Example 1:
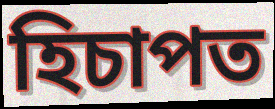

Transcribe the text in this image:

হিচাপত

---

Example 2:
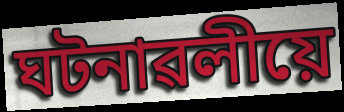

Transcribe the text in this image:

ঘটনাৱলীয়ে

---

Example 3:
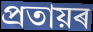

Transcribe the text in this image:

প্ৰতায়ৰ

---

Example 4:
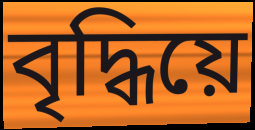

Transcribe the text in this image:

বৃদ্ধিয়ে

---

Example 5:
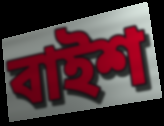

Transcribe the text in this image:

বাইশ